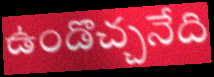
ఉండొచ్చనేది